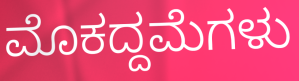
ಮೊಕದ್ದಮೆಗಳು